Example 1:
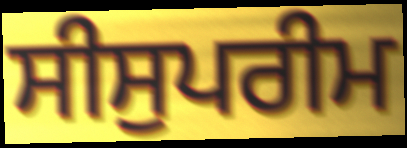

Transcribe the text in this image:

ਸੀਸੁਪਰੀਮ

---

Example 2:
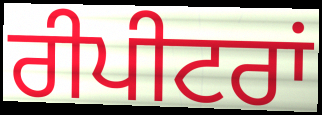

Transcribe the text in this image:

ਰੀਪੀਟਰਾਂ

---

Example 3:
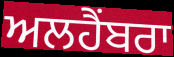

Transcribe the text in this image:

ਅਲਹੈਂਬਰਾ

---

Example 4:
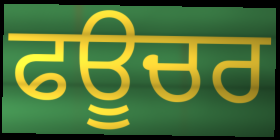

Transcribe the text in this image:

ਫਊਚਰ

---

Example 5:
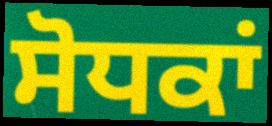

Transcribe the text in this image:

ਸੋਧਕਾਂ